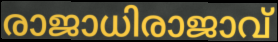
രാജാധിരാജാവ്